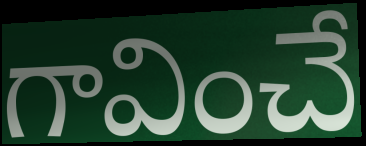
గావించే